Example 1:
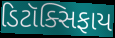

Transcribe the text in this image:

ડિટૉક્સિફાય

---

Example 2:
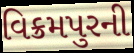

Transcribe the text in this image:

વિક્રમપુરની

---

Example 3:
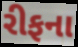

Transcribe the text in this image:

રીફના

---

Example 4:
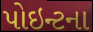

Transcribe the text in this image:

પોઇન્ટના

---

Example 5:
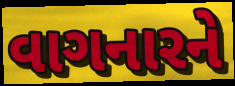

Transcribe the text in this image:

વાગનારને